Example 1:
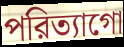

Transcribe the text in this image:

পরিত্যাগো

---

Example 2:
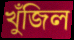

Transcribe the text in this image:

খুঁজিল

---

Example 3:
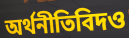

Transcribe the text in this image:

অর্থনীতিবিদও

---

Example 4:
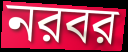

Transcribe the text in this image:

নরবর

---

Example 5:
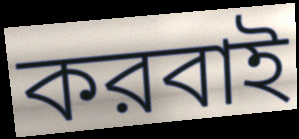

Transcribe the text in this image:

করবাই